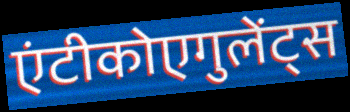
एंटीकोएगुलेंट्स